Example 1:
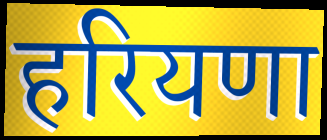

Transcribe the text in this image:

हरियणा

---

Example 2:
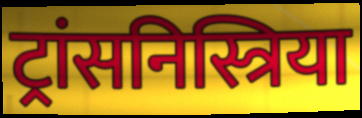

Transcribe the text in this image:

ट्रांसनिस्त्रिया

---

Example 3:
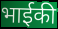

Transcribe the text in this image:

भाईकी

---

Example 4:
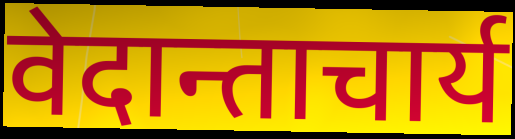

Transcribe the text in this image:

वेदान्ताचार्य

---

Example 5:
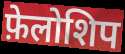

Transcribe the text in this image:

फ़ेलोशिप